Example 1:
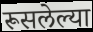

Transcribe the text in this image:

रूसलेल्या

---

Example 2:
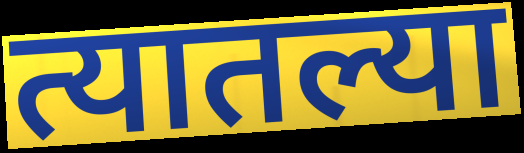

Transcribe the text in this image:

त्यातल्या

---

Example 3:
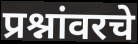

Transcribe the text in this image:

प्रश्नांवरचे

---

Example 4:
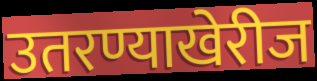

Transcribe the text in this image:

उतरण्याखेरीज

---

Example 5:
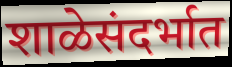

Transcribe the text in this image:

शाळेसंदर्भात